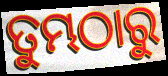
ତୁମ୍ଭଠାରୁ